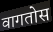
वागतोस